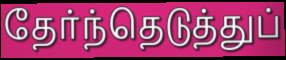
தேர்ந்தெடுத்துப்